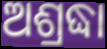
ଅଶ୍ରଦ୍ଧା